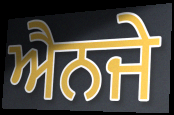
ਐਨਜੇ